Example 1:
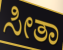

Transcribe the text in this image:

ಸೀತಾ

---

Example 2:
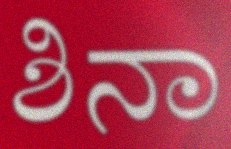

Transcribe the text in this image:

ಶಿನಾ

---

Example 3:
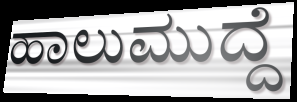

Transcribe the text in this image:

ಹಾಲುಮುದ್ದೆ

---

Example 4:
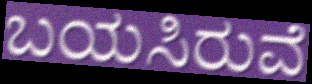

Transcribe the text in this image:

ಬಯಸಿರುವೆ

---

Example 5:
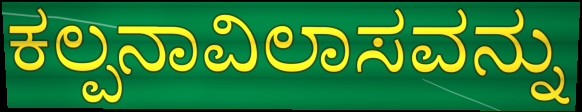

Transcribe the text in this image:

ಕಲ್ಪನಾವಿಲಾಸವನ್ನು